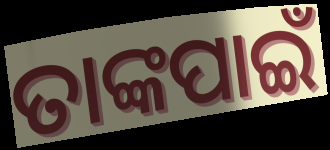
ତାଙ୍କପାଇଁ